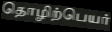
தொழிற்பெயர்